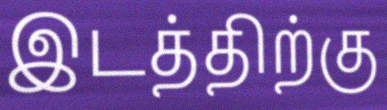
இடத்திற்கு